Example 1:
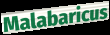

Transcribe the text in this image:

Malabaricus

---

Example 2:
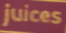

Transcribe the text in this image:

juices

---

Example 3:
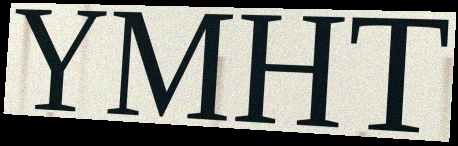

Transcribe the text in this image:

YMHT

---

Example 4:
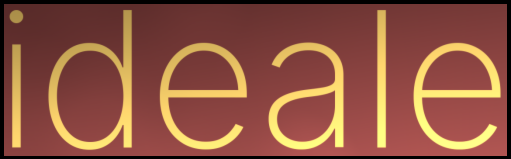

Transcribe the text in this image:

ideale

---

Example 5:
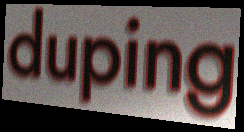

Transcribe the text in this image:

duping